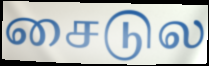
சைடுல